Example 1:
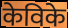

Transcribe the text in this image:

केविके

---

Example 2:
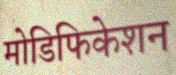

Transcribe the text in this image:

मोडिफिकेशन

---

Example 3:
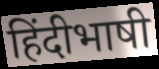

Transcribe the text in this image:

हिंदीभाषी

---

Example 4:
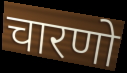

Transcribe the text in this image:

चारणो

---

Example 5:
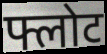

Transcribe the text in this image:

फ्लोट